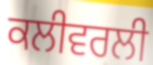
ਕਲੀਵਰਲੀ